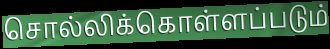
சொல்லிக்கொள்ளப்படும்